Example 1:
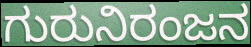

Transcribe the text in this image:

ಗುರುನಿರಂಜನ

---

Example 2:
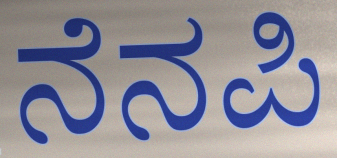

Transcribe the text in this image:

ನೆನಪಿ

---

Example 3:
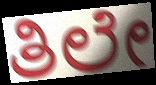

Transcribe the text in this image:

ತಿಲೇ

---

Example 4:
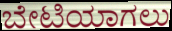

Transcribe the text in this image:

ಬೇಟಿಯಾಗಲು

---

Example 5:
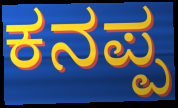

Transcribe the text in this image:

ಕನಪ್ಪ